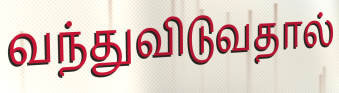
வந்துவிடுவதால்